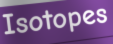
Isotopes